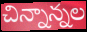
చిన్నాన్నల